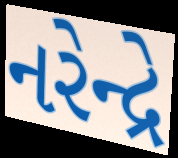
નરેન્દ્રે